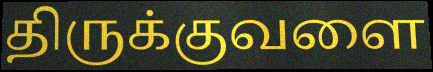
திருக்குவளை